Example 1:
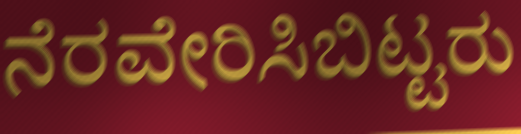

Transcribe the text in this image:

ನೆರವೇರಿಸಿಬಿಟ್ಟರು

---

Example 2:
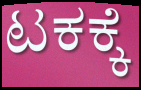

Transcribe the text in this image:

ಟಕಕ್ಕೆ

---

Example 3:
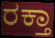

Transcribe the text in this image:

ರಕ್ತಾ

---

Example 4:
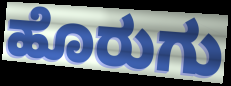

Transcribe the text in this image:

ಹೊರುಗು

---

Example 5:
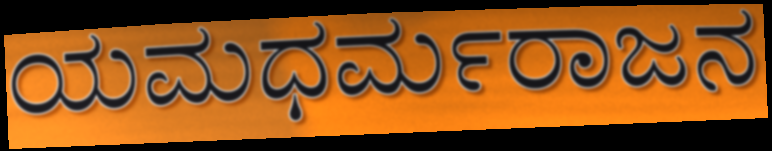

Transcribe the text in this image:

ಯಮಧರ್ಮರಾಜನ